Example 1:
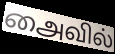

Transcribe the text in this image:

அைவில்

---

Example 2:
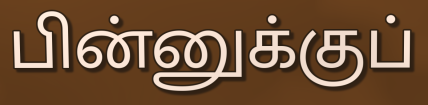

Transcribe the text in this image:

பின்னுக்குப்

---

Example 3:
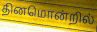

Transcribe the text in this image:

தினமொன்றில்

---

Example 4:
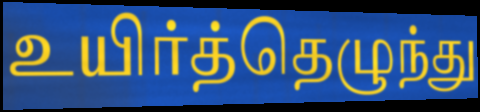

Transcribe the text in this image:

உயிர்த்தெழுந்து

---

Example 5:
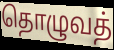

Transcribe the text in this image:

தொழுவத்